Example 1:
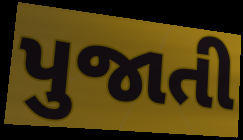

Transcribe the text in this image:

પુજાતી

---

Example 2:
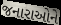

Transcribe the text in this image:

જનારાઓને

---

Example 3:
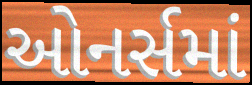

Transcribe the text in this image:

ઓનર્સમાં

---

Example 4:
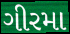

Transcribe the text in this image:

ગીરમા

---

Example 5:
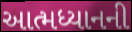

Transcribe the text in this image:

આત્મધ્યાનની